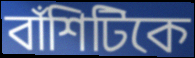
বাঁশিটিকে